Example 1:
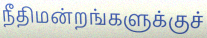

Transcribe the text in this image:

நீதிமன்றங்களுக்குச்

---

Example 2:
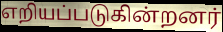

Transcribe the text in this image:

எறியப்படுகின்றனர்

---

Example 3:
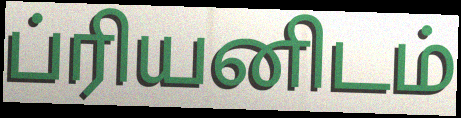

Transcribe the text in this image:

ப்ரியனிடம்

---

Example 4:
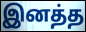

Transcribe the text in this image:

இனத்த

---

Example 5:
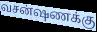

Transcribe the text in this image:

வசன்ஷணக்கு